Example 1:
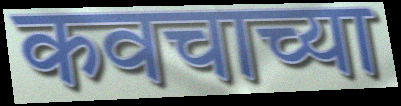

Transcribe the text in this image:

कवचाच्या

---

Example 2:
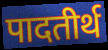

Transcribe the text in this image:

पादतीर्थ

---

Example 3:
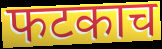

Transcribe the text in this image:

फटकाच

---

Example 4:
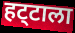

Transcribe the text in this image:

हट्‌टाला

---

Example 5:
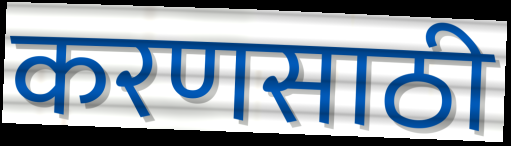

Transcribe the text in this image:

करणसाठी